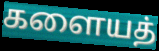
களையத்